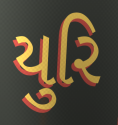
યુરિ